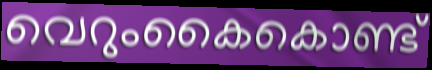
വെറുംകൈകൊണ്ട്